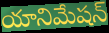
యానిమేషన్